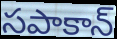
సపాకాన్